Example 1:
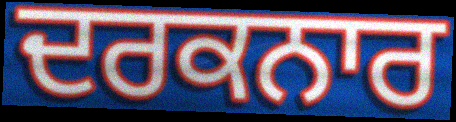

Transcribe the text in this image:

ਦਰਕਨਾਰ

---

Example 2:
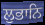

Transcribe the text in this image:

ਲੁਭਾਨਿ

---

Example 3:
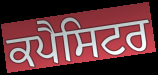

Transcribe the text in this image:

ਕਪੈਸਿਟਰ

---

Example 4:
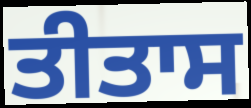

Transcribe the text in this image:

ਤੀਤਾਸ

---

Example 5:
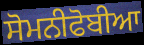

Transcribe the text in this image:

ਸੋਮਨੀਫੋਬੀਆ